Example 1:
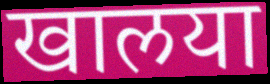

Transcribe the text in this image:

खालया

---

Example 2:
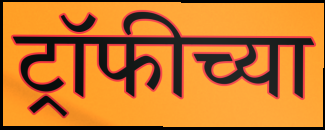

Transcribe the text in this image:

ट्रॉफीच्या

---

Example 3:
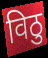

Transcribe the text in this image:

विठु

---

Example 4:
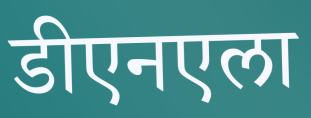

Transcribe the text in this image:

डीएनएला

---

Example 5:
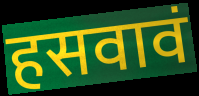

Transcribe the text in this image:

हसवावं